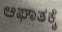
ಆಘಾತಕ್ಕೆ